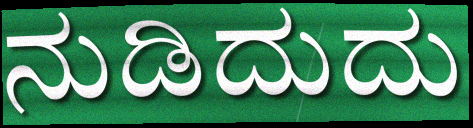
ನುಡಿದುದು